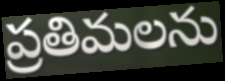
ప్రతిమలను